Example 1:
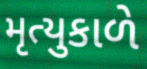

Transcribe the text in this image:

મૃત્યુકાળે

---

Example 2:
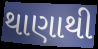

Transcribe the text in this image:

થાણાથી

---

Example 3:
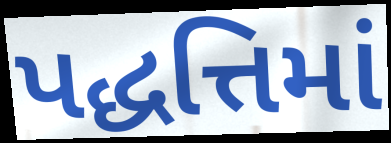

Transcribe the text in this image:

પદ્ધત્તિમાં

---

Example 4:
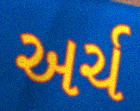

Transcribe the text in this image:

અર્ચ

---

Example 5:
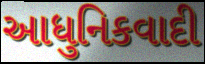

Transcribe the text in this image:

આધુનિકવાદી